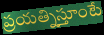
ప్రయత్నిస్తూంటే